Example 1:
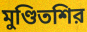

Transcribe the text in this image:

মুণ্ডিতশির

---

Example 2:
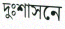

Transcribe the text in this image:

দুঃশাসনে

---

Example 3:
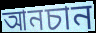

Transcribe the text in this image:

আনচান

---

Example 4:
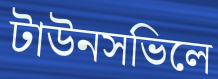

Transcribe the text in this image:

টাউনসভিলে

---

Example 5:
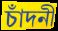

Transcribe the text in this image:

চাঁদনী